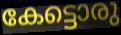
കേട്ടൊരു